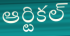
ఆర్టికల్